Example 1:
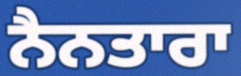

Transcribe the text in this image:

ਨੈਨਤਾਰਾ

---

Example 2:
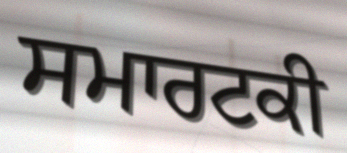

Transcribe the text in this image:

ਸਮਾਰਟਕੀ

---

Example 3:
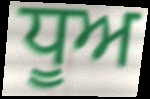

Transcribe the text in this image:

ਧੂਅ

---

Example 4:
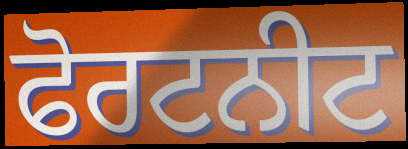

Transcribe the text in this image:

ਫੋਰਟਨੀਟ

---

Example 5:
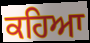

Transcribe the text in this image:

ਕਹਿਆ